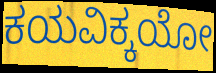
ಕಯವಿಕ್ಕಯೋ